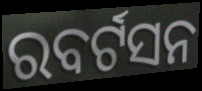
ରବର୍ଟସନ